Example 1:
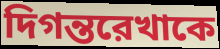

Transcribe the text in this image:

দিগন্তরেখাকে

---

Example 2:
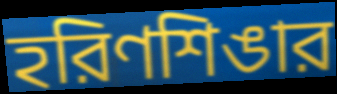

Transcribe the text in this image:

হরিণশিঙার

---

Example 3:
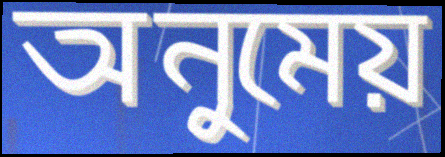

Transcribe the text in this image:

অনুমেয়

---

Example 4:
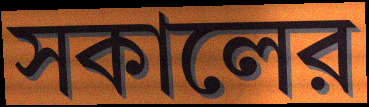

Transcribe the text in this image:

সকালের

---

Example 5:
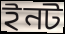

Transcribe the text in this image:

ইনট